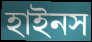
হাইনস